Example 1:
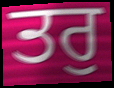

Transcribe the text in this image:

ਤਰੁ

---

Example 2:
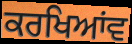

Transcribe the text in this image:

ਕਰਖਿਆਂਵ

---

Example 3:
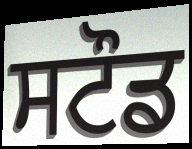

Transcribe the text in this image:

ਸਟੌਡ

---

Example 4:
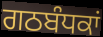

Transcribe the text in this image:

ਗਠਬੰਧਕਾਂ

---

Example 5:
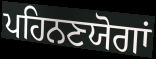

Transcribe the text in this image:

ਪਹਿਨਣਯੋਗਾਂ